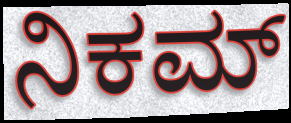
ನಿಕಮ್